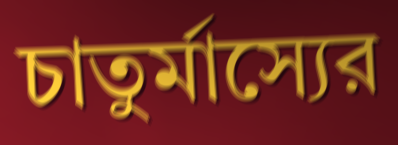
চাতুর্মাস্যের